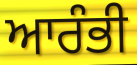
ਆਰੰਭੀ